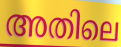
അതിലെ